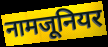
नामजूनियर